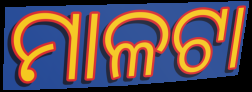
ମାଳଟା